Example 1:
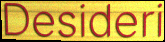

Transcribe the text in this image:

Desideri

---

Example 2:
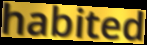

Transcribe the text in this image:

habited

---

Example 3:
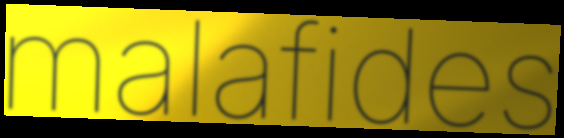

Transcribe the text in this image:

malafides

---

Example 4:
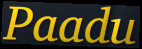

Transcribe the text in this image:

Paadu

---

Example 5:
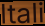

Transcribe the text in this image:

Itali